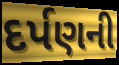
દર્પણની